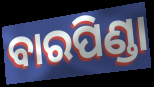
ବାରପିଣ୍ଡା